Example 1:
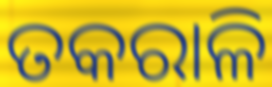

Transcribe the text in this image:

ତକରାଳି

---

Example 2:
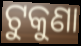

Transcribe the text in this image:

ଟୁକୁଣା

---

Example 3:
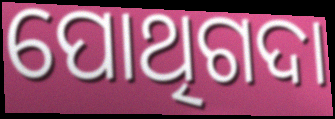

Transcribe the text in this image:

ପୋଥିଗଦା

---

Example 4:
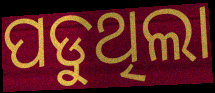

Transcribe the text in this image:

ପଡୁଥିଲା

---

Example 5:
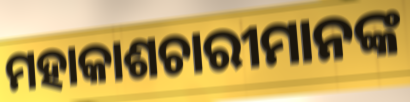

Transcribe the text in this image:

ମହାକାଶଚାରୀମାନଙ୍କ